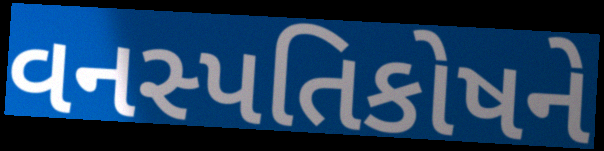
વનસ્પતિકોષને